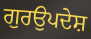
ਗੁਰਉਪਦੇਸ਼